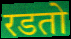
रडतो